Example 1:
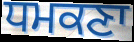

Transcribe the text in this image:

ਧਮਕਣਾ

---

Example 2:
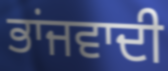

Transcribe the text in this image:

ਭਾਂਜਵਾਦੀ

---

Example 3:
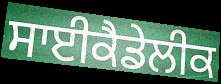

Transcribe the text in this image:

ਸਾਈਕੈਡੇਲੀਕ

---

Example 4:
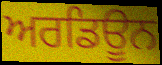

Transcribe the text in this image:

ਅਰਡਿਊਨ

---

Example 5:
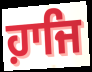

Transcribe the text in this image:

ਹ਼ਾਜਿ